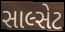
સાલ્સેટ